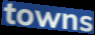
towns